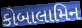
કોબાલામિન